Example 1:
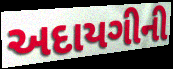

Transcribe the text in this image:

અદાયગીની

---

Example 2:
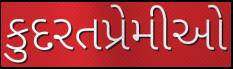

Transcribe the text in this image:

કુદરતપ્રેમીઓ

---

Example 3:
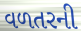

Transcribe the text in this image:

વળતરની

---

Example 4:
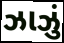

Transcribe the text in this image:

ઝાઝું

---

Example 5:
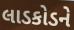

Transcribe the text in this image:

લાડકોડને